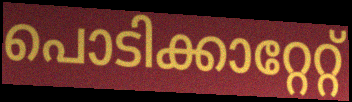
പൊടിക്കാറ്റേറ്റ്